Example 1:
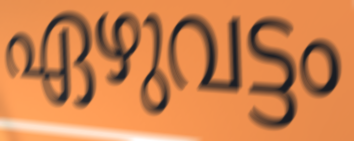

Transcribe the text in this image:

ഏഴുവട്ടം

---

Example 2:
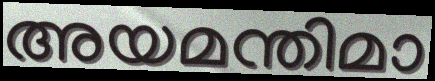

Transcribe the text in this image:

അയമന്തിമാ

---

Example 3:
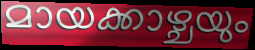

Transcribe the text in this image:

മായക്കാഴ്ചയും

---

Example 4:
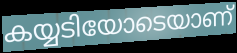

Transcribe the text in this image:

കയ്യടിയോടെയാണ്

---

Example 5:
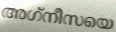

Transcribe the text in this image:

അഗ്‌നീസയെ